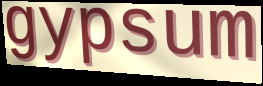
gypsum